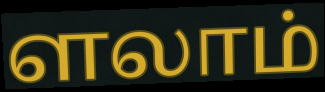
ளலாம்